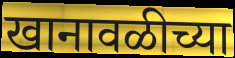
खानावळीच्या